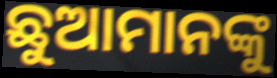
ଛୁଆମାନଙ୍କୁ